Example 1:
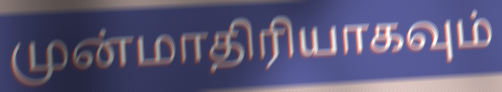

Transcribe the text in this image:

முன்மாதிரியாகவும்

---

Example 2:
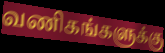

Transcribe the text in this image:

வணிகங்களுக்கு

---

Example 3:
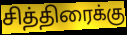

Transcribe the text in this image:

சித்திரைக்கு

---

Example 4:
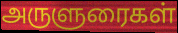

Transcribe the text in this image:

அருளுரைகள்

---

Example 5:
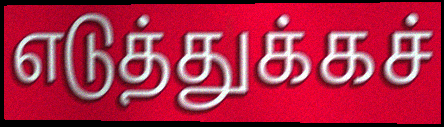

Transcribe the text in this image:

எடுத்துக்கச்